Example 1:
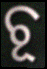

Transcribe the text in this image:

ଚୂ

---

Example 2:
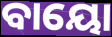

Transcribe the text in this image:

ବାୟୋ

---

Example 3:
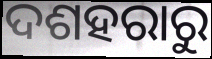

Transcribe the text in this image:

ଦଶହରାରୁ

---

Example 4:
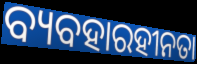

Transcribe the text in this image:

ବ୍ୟବହାରହୀନତା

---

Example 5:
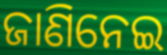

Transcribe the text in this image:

ଜାଣିନେଇ